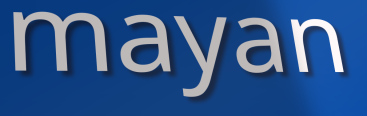
mayan